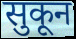
सुकून